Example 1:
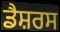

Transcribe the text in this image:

ਡੈਸ਼ਰਸ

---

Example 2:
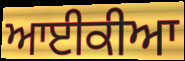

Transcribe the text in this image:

ਆਈਕੀਆ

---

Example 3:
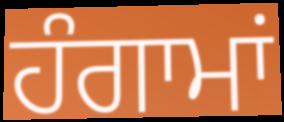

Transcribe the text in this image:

ਹੰਗਾਮਾਂ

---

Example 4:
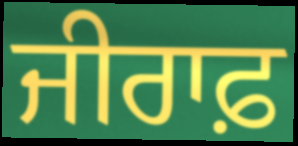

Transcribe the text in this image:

ਜੀਰਾਫ਼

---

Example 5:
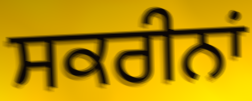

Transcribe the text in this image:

ਸਕਰੀਨਾਂ